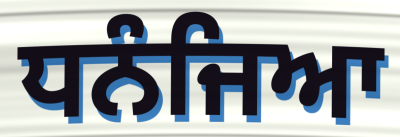
ਧਨੰਜਿਆ